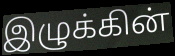
இழுக்கின்